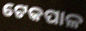
ଟେକପାଳ